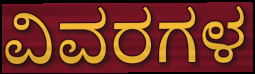
ವಿವರಗಳ